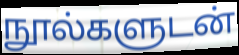
நூல்களுடன்